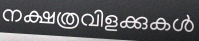
നക്ഷത്രവിളക്കുകൾ